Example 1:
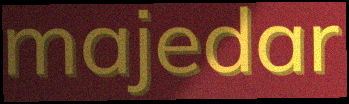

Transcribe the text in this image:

majedar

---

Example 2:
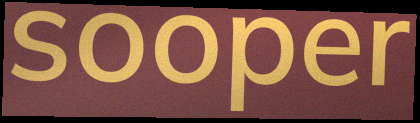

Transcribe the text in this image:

sooper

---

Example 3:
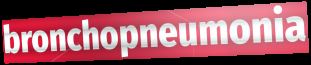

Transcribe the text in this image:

bronchopneumonia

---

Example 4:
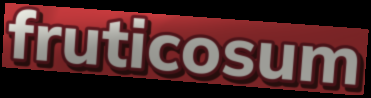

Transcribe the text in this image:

fruticosum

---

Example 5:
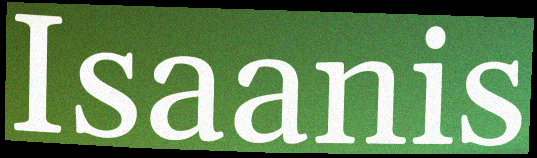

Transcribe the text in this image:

Isaanis